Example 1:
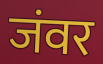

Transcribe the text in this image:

जंवर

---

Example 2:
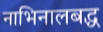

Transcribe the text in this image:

नाभिनालबद्ध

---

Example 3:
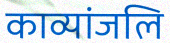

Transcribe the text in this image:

काव्यांजलि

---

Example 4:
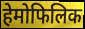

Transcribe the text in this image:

हेमोफिलिक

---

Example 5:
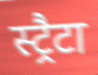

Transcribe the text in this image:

स्ट्रैटा